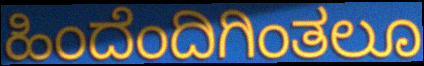
ಹಿಂದೆಂದಿಗಿಂತಲೂ